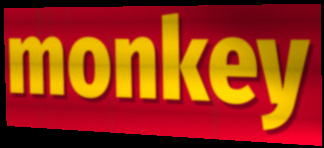
monkey